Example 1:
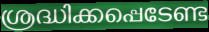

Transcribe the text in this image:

ശ്രദ്ധിക്കപ്പെടേണ്ട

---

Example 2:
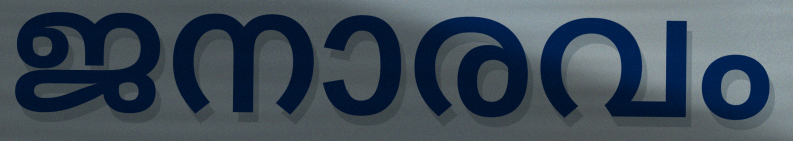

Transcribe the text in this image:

ജനാരവം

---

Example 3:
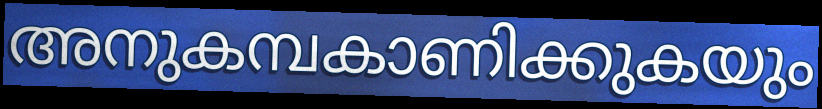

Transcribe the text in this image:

അനുകമ്പകാണിക്കുകയും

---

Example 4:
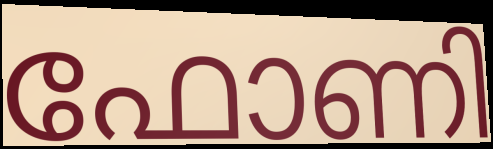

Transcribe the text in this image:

ഫോണി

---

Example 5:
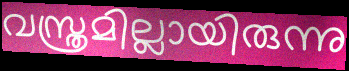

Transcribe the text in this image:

വസ്ത്രമില്ലായിരുന്നു